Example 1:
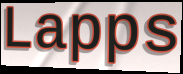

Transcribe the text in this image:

Lapps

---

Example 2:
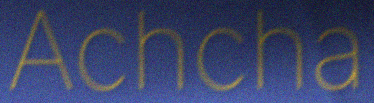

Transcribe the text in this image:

Achcha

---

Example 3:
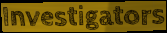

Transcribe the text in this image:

Investigators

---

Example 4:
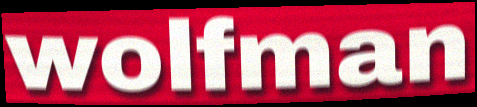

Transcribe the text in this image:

wolfman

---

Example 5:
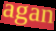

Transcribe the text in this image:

agan